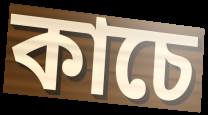
কাচে